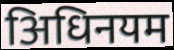
अिधिनयम